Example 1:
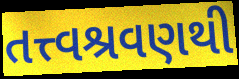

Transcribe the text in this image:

તત્ત્વશ્રવણથી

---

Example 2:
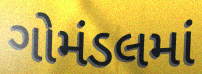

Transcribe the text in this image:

ગોમંડલમાં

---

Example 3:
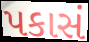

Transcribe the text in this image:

પકાસં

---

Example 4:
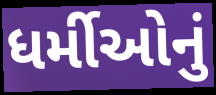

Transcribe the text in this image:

ધર્મીઓનું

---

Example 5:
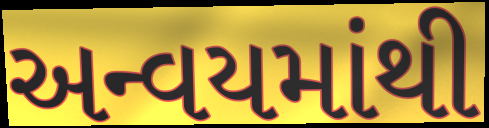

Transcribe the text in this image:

અન્વયમાંથી